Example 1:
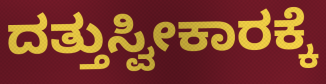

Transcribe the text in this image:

ದತ್ತುಸ್ವೀಕಾರಕ್ಕೆ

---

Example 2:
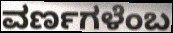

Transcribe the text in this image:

ವರ್ಣಗಳೆಂಬ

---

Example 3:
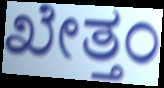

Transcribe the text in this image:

ಖೇತ್ತಂ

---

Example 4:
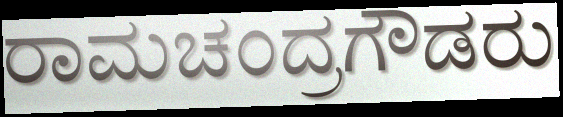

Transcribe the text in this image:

ರಾಮಚಂದ್ರಗೌಡರು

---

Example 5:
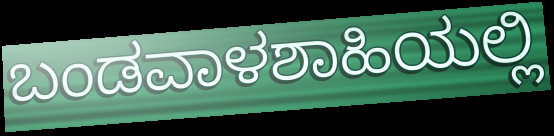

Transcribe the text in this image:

ಬಂಡವಾಳಶಾಹಿಯಲ್ಲಿ